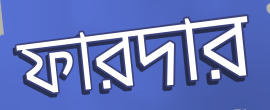
ফারদার